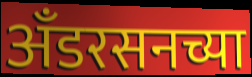
अँडरसनच्या